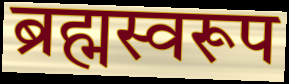
ब्रह्मस्वरूप